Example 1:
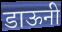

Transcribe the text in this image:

डाऊनी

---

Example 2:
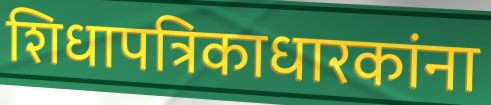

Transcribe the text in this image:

शिधापत्रिकाधारकांना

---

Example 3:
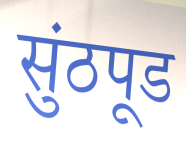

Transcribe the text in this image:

सुंठपूड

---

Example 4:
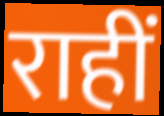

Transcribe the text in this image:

राहीं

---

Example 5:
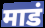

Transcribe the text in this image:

माडं